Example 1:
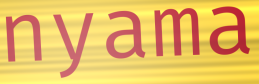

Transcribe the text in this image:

nyama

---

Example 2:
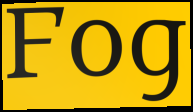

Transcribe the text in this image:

Fog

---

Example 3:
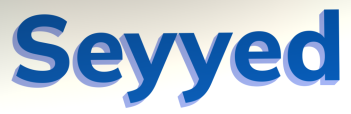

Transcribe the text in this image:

Seyyed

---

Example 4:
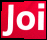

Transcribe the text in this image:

Joi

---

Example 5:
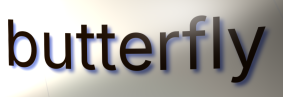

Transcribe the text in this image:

butterfly